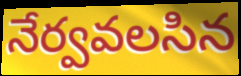
నేర్వవలసిన